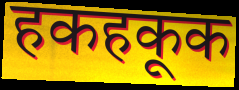
हकहकूक